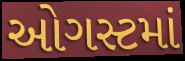
ઓગસ્ટમાં